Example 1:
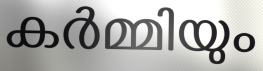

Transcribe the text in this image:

കർമ്മിയും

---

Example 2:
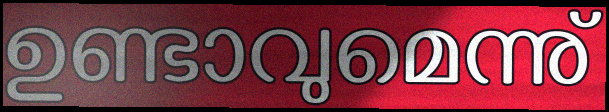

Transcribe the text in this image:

ഉണ്ടാവുമെന്നു്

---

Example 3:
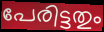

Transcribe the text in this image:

പേരിട്ടതും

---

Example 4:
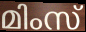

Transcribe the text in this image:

മിംസ്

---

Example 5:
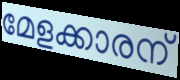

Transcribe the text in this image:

മേളക്കാരന്